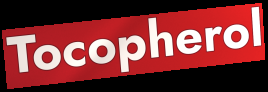
Tocopherol